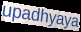
upadhyaya